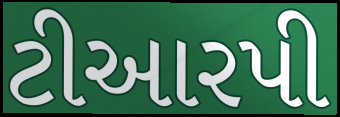
ટીઆરપી